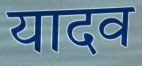
यादव